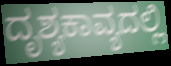
ದೃಶ್ಯಕಾವ್ಯದಲ್ಲಿ